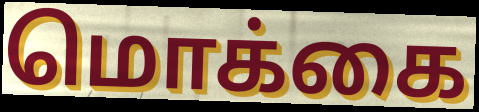
மொக்கை